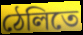
ঠেলিতে